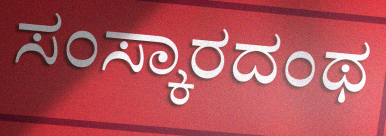
ಸಂಸ್ಕಾರದಂಥ